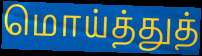
மொய்த்துத்